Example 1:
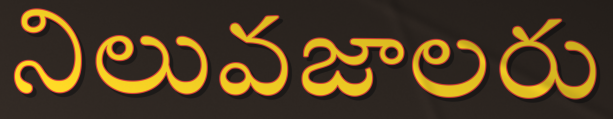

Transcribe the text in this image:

నిలువజాలరు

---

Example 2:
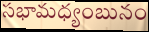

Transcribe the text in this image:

సభామధ్యంబునం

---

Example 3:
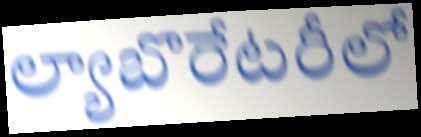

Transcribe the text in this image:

ల్యాబొరేటరీలో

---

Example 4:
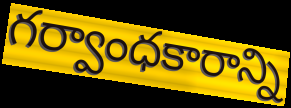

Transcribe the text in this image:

గర్వాంధకారాన్ని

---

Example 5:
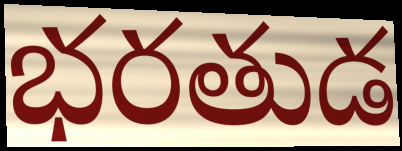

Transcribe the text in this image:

భరతుడ